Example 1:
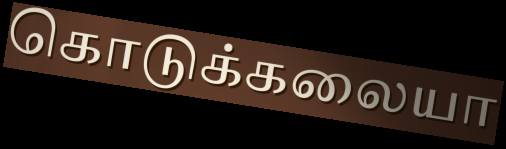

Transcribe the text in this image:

கொடுக்கலையா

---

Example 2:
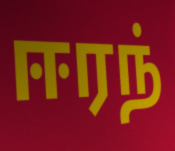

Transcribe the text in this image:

ஈரந்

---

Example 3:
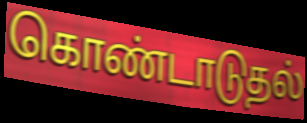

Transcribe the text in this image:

கொண்டாடுதல்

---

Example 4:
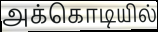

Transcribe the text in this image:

அக்கொடியில்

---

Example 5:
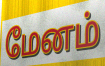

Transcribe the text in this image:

மேனம்